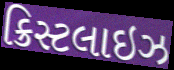
ક્રિસ્ટલાઇઝ